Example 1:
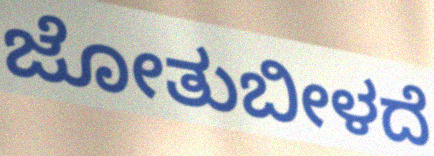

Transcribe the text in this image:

ಜೋತುಬೀಳದೆ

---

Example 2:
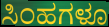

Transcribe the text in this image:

ಸಿಂಹಗಳೂ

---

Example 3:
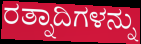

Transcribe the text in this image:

ರತ್ನಾದಿಗಳನ್ನು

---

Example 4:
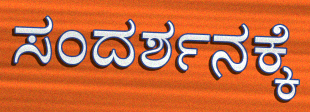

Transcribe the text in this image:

ಸಂದರ್ಶನಕ್ಕೆ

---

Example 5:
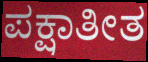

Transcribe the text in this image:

ಪಕ್ಷಾತೀತ